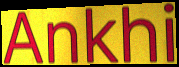
Ankhi